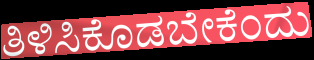
ತಿಳಿಸಿಕೊಡಬೇಕೆಂದು